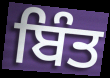
ਬਿੰਤ